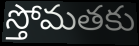
స్తోమతకు